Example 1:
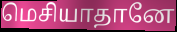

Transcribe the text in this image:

மெசியாதானே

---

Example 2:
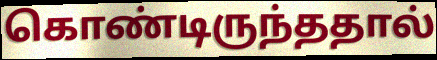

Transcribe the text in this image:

கொண்டிருந்ததால்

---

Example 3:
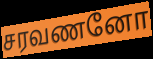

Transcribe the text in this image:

சரவணனோ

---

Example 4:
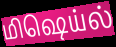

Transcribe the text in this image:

மிஷெய்ல்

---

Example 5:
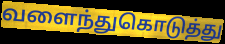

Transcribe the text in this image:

வளைந்துகொடுத்து